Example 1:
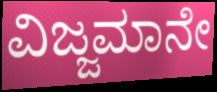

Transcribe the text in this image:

ವಿಜ್ಜಮಾನೇ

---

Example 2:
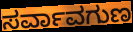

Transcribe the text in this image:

ಸರ್ವಾವಗುಣ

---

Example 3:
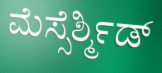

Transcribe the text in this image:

ಮೆಸ್ಸೆರ್ಶ್ಮಿಡ್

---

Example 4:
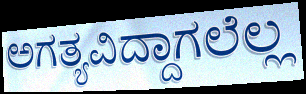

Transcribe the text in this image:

ಅಗತ್ಯವಿದ್ದಾಗಲೆಲ್ಲ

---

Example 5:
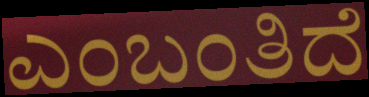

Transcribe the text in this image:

ಎಂಬಂತಿದೆ